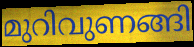
മുറിവുണങ്ങി